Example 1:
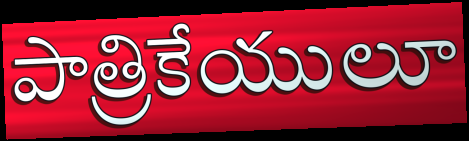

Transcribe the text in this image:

పాత్రికేయులూ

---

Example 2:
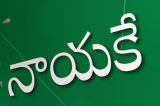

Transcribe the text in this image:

నాయకే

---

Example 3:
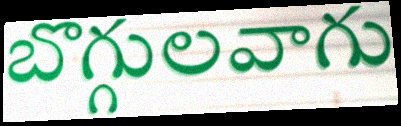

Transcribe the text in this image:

బొగ్గులవాగు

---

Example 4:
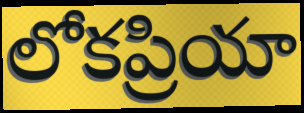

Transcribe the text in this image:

లోకప్రియా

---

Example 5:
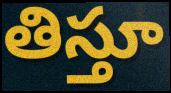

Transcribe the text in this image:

తిస్తూ